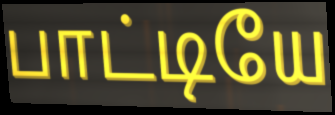
பாட்டியே